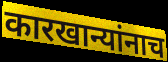
कारखान्यांनाच